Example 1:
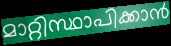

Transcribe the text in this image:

മാറ്റിസ്ഥാപിക്കാൻ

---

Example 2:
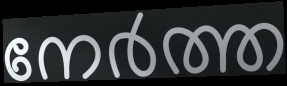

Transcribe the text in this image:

നേർത്ത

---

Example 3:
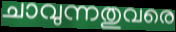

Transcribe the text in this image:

ചാവുന്നതുവരെ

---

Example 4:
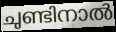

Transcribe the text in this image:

ചുണ്ടിനാൽ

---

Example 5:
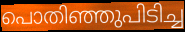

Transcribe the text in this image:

പൊതിഞ്ഞുപിടിച്ച